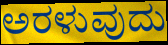
ಅರಳುವುದು